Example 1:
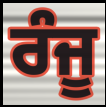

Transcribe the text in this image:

ਰੰਜੂ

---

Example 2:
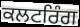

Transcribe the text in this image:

ਕਲਟਰਿੰਗ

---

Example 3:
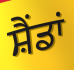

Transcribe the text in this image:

ਸ਼ੈਂਡਾਂ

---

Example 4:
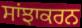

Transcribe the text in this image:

ਸਾਂਝਾਕਰਨ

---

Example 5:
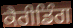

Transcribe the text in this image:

ਕੈਰੀਡਿੰਗ